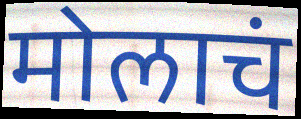
मोलाचं